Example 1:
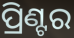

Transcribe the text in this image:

ପ୍ରିଣ୍ଟର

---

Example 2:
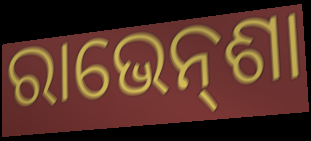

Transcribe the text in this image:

ରାଭେନ୍‌ଶା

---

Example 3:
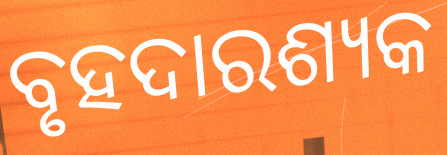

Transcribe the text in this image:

ବୃହଦାରଶ୍ୟକ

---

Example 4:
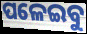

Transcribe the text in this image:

ପଳେଇବୁ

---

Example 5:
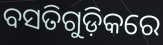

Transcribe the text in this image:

ବସତିଗୁଡ଼ିକରେ